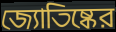
জ্যোতিষ্কের